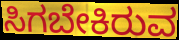
ಸಿಗಬೇಕಿರುವ